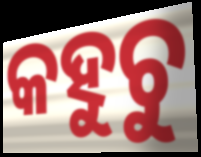
କହୁଚୁ